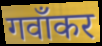
गवाँकर